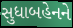
સુધાબહેનને